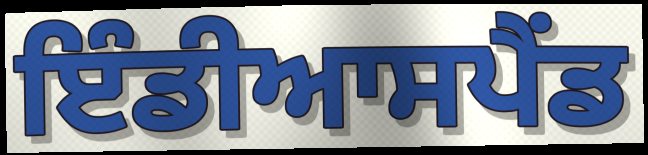
ਇੰਡੀਆਸਪੈਂਡ